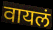
वायलं